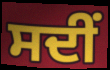
ਸਦੀਂ